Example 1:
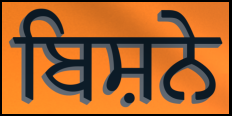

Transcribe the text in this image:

ਬਿਸ਼ਨੇ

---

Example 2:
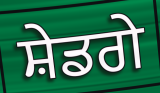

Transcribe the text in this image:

ਸ਼ੇਡਗੇ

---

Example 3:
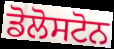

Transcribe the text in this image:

ਡੋਲੋਸਟੋਨ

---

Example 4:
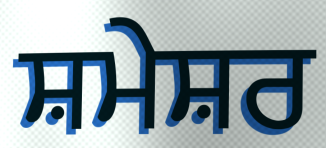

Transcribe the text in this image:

ਸ਼ਮੇਸ਼ਰ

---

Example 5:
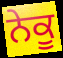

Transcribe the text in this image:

ਨੇਕੂ